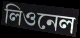
লিওনেল